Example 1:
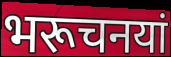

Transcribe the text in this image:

भरूचनयां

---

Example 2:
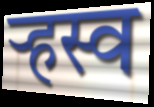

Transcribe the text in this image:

र्‍हस्व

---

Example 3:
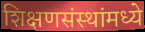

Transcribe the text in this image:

शिक्षणसंस्थांमध्ये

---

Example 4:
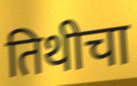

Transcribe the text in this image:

तिथीचा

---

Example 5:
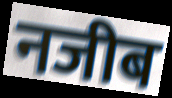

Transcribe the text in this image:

नजीब